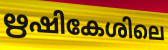
ഋഷികേശിലെ